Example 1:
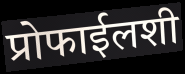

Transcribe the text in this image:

प्रोफाईलशी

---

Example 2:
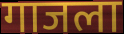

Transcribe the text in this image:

गाजला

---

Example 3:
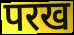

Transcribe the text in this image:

परख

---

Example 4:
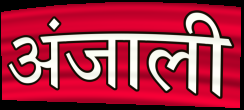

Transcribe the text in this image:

अंजाली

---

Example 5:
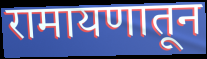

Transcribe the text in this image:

रामायणातून